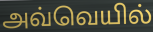
அவ்வெயில்